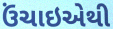
ઉંચાઇએથી